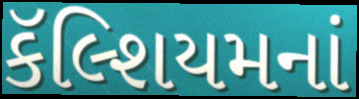
કૅલ્શિયમનાં